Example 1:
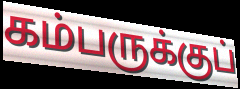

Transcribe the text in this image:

கம்பருக்குப்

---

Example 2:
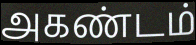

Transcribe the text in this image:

அகண்டம்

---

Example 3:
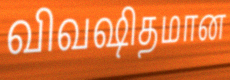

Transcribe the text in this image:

விவஷிதமான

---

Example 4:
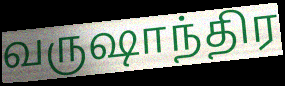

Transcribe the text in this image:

வருஷாந்திர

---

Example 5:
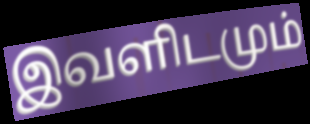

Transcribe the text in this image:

இவளிடமும்